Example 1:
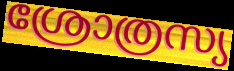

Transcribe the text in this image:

ശ്രോത്രസ്യ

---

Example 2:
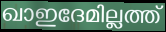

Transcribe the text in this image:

ഖാഇദേമില്ലത്ത്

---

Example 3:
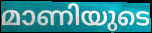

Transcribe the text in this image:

മാണിയുടെ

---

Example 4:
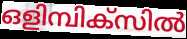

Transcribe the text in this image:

ഒളിമ്പിക്സിൽ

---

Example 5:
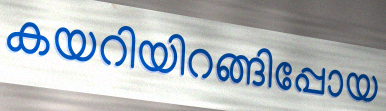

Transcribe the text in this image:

കയറിയിറങ്ങിപ്പോയ